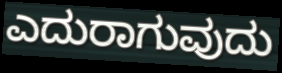
ಎದುರಾಗುವುದು